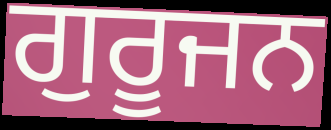
ਗੁਰੂਜਨ